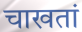
चाखतां